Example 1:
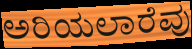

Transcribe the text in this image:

ಅರಿಯಲಾರೆವು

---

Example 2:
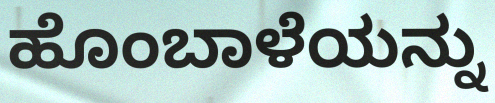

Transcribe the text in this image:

ಹೊಂಬಾಳೆಯನ್ನು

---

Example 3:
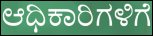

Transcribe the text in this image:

ಆಧಿಕಾರಿಗಳಿಗೆ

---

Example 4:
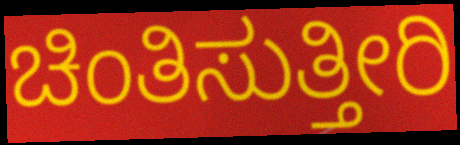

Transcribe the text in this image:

ಚಿಂತಿಸುತ್ತೀರಿ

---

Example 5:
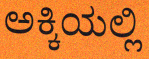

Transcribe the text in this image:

ಅಕ್ಕಿಯಲ್ಲಿ